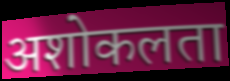
अशोकलता